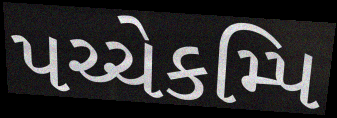
પચ્ચેકમ્પિ